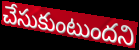
చేసుకుంటుందని